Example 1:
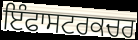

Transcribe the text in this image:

ਇੰਫਾਸਟਰਕਚਰ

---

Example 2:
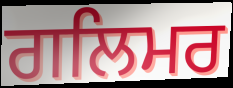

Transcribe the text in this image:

ਗਲਿਮਰ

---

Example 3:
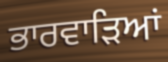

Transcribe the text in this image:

ਭਾਰਵਾੜਿਆਂ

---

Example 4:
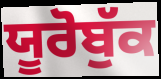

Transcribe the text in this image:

ਯੂਰੋਬੁੱਕ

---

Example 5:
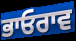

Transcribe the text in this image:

ਭਾਓਰਾਵ